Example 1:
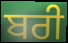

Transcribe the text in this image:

ਬਰੀ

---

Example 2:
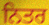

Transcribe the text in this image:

ਨਿਤਰ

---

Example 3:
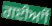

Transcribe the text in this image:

ਗਈਆੀਂ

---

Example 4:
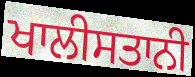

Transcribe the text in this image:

ਖਾਲੀਸਤਾਨੀ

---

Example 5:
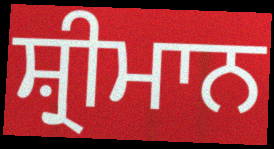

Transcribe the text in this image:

ਸ਼੍ਰੀਮਾਨ